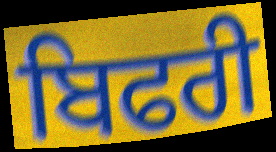
ਬਿਫਰੀ